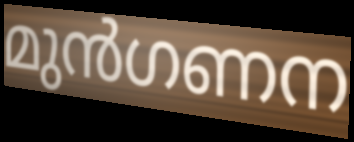
മുൻഗണന